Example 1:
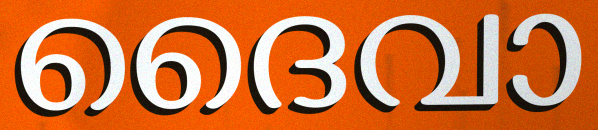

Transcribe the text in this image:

ദൈവാ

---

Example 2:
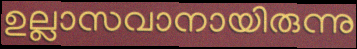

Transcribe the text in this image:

ഉല്ലാസവാനായിരുന്നു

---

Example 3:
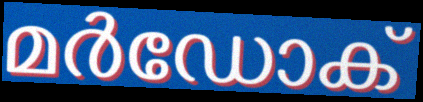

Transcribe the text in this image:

മർഡോക്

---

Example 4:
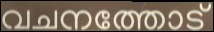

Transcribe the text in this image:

വചനത്തോട്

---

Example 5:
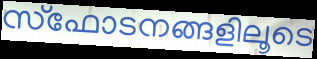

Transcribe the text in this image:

സ്ഫോടനങ്ങളിലൂടെ